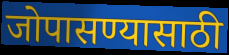
जोपासण्यासाठी